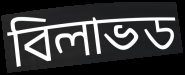
বিলাভড